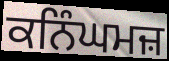
ਕਨਿੰਘਮਜ਼